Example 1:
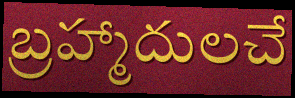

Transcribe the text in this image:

బ్రహ్మాదులచే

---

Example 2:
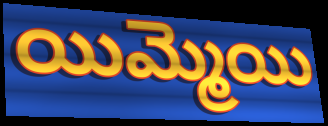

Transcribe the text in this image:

యిమ్మెయి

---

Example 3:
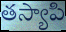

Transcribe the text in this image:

తస్యాపి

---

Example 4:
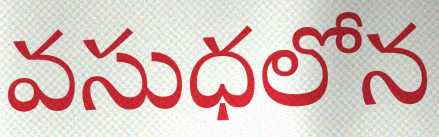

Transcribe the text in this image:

వసుధలోన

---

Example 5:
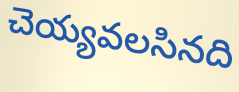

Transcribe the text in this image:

చెయ్యవలసినది